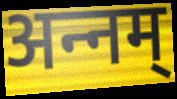
अन्नम्